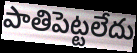
పాతిపెట్టలేదు